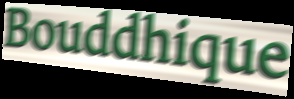
Bouddhique